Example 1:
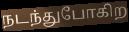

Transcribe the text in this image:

நடந்துபோகிற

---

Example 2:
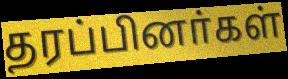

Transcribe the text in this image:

தரப்பினர்கள்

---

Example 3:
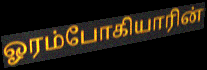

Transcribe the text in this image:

ஓரம்போகியாரின்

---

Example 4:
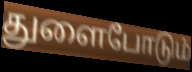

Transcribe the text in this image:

துளைபோடும்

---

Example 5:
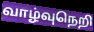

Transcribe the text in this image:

வாழ்வுநெறி